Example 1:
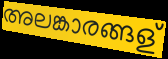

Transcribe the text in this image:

അലങ്കാരങ്ങള്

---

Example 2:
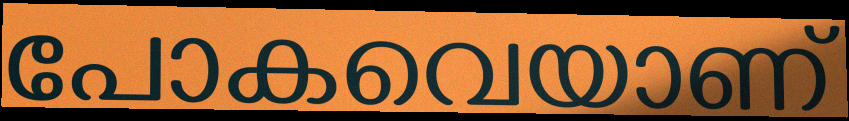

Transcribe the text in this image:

പോകവെയാണ്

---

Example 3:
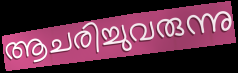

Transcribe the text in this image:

ആചരിച്ചുവരുന്നു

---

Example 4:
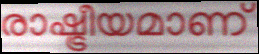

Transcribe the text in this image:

രാഷ്ട്രീയമാണ്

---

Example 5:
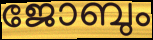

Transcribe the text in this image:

ജോബും